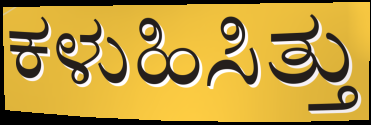
ಕಳುಹಿಸಿತ್ತು